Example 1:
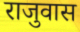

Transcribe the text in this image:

राजुवास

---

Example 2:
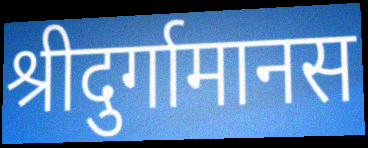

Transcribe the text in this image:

श्रीदुर्गामानस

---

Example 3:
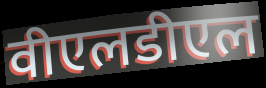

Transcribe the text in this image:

वीएलडीएल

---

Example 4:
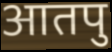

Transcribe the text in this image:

आतपु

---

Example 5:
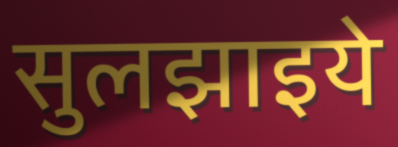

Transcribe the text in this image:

सुलझाइये